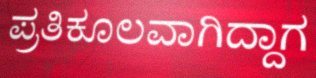
ಪ್ರತಿಕೂಲವಾಗಿದ್ದಾಗ